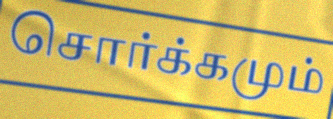
சொர்க்கமும்